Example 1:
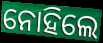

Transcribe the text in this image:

ନୋହିଲେ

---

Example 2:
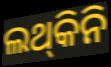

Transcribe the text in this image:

ଲଥ୍‌କିନି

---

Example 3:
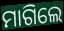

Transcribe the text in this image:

ମାଗିଲେ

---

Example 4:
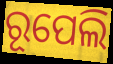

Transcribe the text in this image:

ରୂପେଲି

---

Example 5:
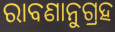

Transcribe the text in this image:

ରାବଣାନୁଗ୍ରହ